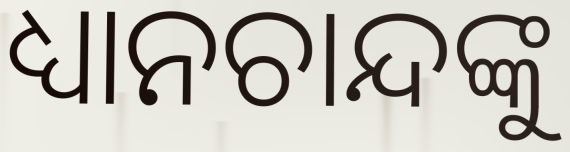
ଧ୍ୟାନଚାନ୍ଦଙ୍କୁ